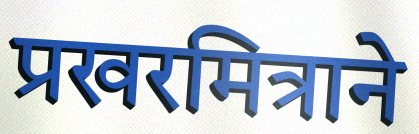
प्रखरमित्राने